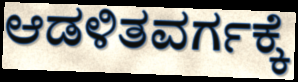
ಆಡಳಿತವರ್ಗಕ್ಕೆ